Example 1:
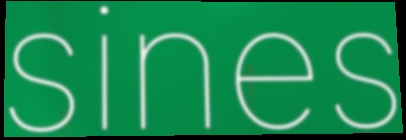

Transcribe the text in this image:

sines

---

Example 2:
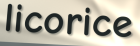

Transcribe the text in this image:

licorice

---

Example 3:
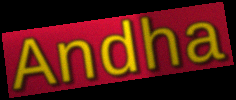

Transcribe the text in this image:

Andha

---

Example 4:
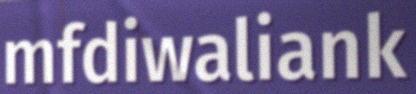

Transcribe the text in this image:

mfdiwaliank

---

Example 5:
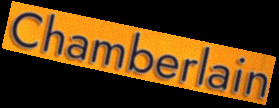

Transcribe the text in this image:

Chamberlain